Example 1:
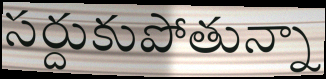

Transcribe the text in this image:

సర్దుకుపోతున్నా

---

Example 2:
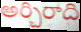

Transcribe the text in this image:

అర్చిరాది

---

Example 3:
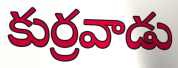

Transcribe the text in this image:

కుర్రవాడు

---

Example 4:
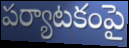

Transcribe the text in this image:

పర్యాటకంపై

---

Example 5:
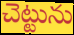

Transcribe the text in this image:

చెట్టును